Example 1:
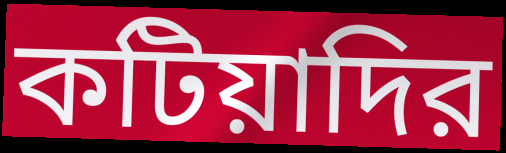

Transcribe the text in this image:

কটিয়াদির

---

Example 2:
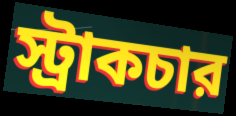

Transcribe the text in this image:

স্ট্রাকচার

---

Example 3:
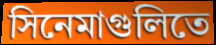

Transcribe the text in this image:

সিনেমাগুলিতে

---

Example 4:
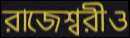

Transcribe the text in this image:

রাজেশ্বরীও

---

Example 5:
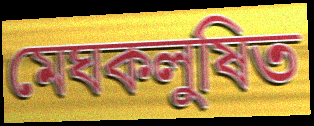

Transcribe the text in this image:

মেঘকলুষিত